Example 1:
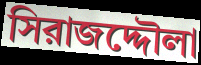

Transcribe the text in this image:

সিরাজদ্দৌলা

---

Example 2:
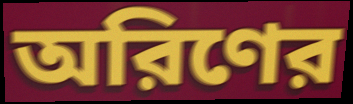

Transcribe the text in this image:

অরিণের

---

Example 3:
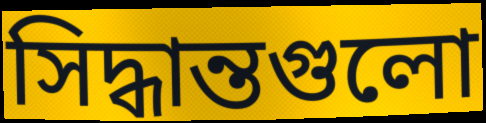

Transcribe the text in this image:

সিদ্ধান্তগুলো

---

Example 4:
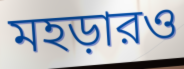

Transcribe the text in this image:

মহড়ারও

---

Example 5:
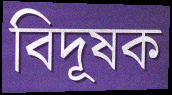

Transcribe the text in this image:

বিদূষক